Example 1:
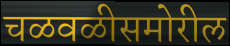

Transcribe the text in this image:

चळवळीसमोरील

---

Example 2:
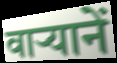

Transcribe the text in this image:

वार्‍यानें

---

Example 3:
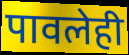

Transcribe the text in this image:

पावलेही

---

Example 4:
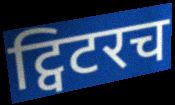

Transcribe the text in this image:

ट्विटरच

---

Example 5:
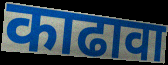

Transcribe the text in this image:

काढावा